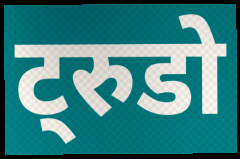
ट्रुडो